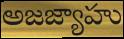
అజజ్యాహు